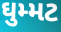
ઘુમ્મટ